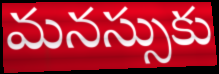
మనస్సుకు